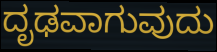
ದೃಢವಾಗುವುದು